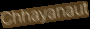
Chhayanaut